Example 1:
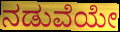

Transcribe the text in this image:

ನಡುವೆಯೇ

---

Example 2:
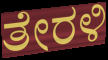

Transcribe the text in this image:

ತೇರಳಿ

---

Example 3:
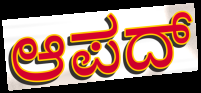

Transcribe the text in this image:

ಆಪದ್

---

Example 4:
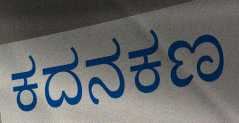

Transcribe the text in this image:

ಕದನಕಣ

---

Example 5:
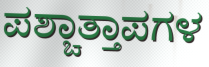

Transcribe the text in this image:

ಪಶ್ಚಾತ್ತಾಪಗಳ